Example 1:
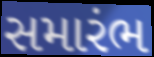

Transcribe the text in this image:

સમારંભ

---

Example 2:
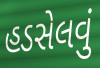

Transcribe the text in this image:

હડસેલવું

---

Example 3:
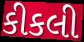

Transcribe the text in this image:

કીકલી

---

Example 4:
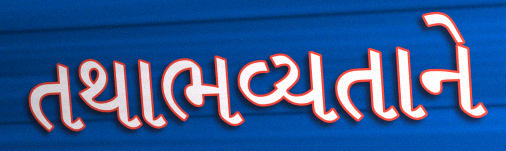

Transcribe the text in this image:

તથાભવ્યતાને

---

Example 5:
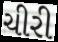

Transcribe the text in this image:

ચીરી